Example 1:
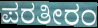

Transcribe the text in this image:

ಪರತೀರಂ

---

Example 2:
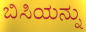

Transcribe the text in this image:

ಬಿಸಿಯನ್ನು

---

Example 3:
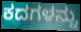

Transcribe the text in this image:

ಕದಗಳನ್ನು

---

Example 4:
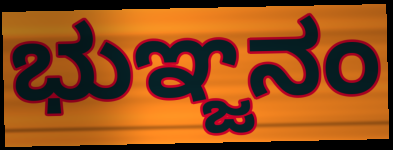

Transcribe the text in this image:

ಭುಞ್ಜನಂ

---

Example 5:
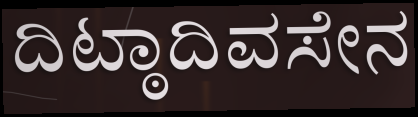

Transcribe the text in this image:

ದಿಟ್ಠಾದಿವಸೇನ